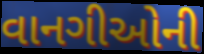
વાનગીઓની